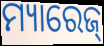
ମ୍ୟାରେଜ୍